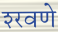
श्रवणे